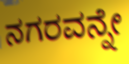
ನಗರವನ್ನೇ